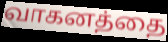
வாகனத்தை